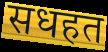
सधहत